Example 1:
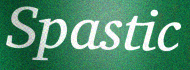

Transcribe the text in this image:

Spastic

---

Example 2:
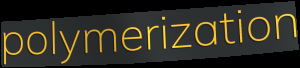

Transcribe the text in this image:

polymerization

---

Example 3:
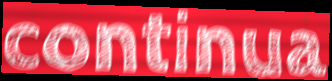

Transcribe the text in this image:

continua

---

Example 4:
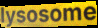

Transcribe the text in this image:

lysosome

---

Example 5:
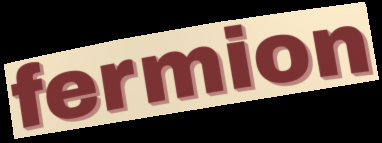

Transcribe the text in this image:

fermion